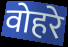
वोहरे